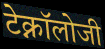
टेक्नॉलोजी